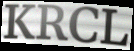
KRCL